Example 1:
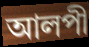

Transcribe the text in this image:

আলপী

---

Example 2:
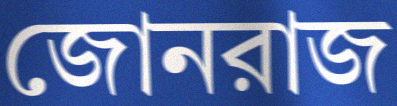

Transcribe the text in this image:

জোনরাজ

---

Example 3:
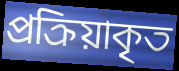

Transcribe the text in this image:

প্রক্রিয়াকৃত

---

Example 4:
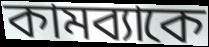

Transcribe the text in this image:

কামব্যাকে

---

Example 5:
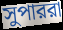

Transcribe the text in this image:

সুপাররা